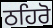
ਠਹਿਰੋ